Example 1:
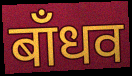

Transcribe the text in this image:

बाँधव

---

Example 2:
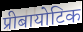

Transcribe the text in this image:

प्रीबायोटिक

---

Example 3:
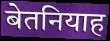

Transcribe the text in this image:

बेतनियाह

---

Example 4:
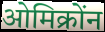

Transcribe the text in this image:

ओमिक्रोंन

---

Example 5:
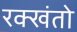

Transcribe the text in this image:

रक्खंतो